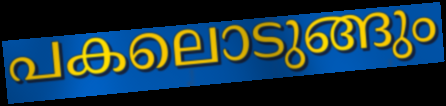
പകലൊടുങ്ങും